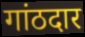
गांठदार